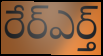
రేర్ఎర్త్